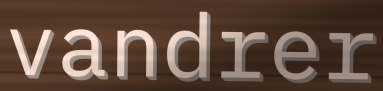
vandrer